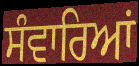
ਸੰਵਾਰਿਆਂ